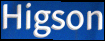
Higson